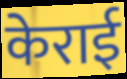
केराई